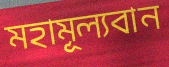
মহামূল্যবান